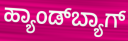
ಹ್ಯಾಂಡ್‌ಬ್ಯಾಗ್